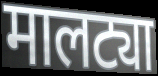
मालट्या